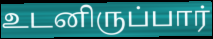
உடனிருப்பார்